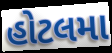
હોટલમા